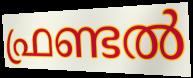
ഫ്രണ്ടൽ